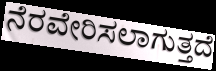
ನೆರವೇರಿಸಲಾಗುತ್ತದೆ